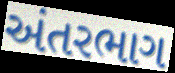
અંતરભાગ